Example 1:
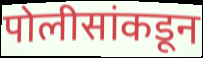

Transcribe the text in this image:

पोलीसांकडून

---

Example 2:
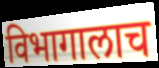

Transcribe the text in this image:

विभागालाच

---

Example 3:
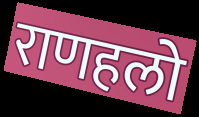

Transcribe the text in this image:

राणहलो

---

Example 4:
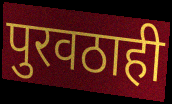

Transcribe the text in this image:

पुरवठाही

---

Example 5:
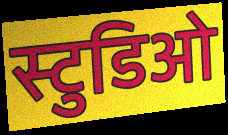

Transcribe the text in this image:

स्टुडिओ